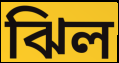
ঝিল